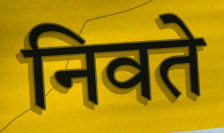
निवते